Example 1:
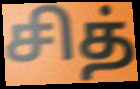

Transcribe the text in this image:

சித்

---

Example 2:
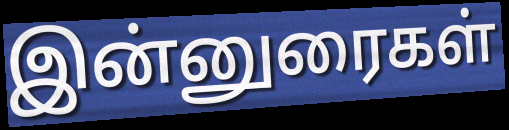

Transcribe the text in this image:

இன்னுரைகள்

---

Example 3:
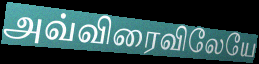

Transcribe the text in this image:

அவ்விரைவிலேயே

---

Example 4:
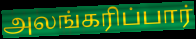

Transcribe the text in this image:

அலங்கரிப்பார்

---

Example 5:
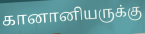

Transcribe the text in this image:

கானானியருக்கு